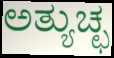
ಅತ್ಯುಚ್ಛ